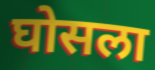
घोसला